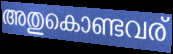
അതുകൊണ്ടവര്